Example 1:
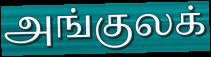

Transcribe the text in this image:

அங்குலக்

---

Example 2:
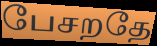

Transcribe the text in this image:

பேசறதே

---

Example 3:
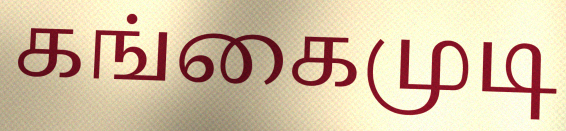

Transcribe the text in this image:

கங்கைமுடி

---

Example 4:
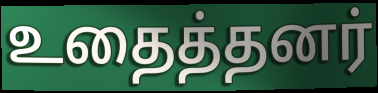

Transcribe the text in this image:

உதைத்தனர்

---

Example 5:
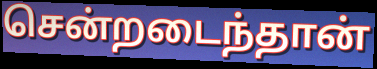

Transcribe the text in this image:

சென்றடைந்தான்